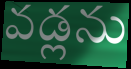
వడ్లను